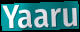
Yaaru